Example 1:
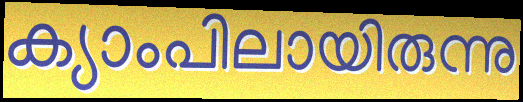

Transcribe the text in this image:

ക്യാംപിലായിരുന്നു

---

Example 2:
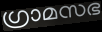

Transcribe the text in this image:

ഗ്രാമസഭ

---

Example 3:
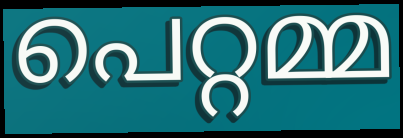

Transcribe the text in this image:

പെറ്റമ്മ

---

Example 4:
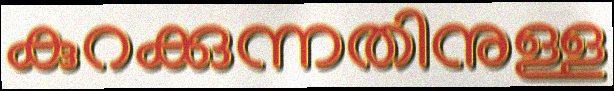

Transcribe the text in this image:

കുറക്കുന്നതിനുള്ള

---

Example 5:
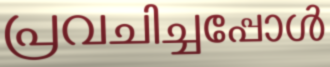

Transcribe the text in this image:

പ്രവചിച്ചപ്പോൾ